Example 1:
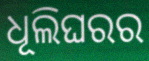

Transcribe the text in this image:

ଧୂଲିଘରର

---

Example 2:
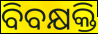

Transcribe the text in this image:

ବିବକ୍ଷକ୍ତି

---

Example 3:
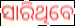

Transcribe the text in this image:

ସାରିଥିବେ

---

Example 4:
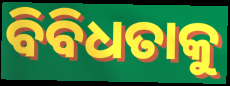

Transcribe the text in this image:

ବିବିଧତାକୁ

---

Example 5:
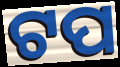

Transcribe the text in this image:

ଟପ